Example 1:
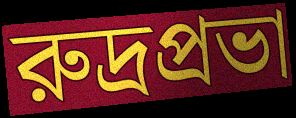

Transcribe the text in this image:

রুদ্রপ্রভা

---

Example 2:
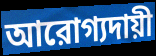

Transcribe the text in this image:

আরোগ্যদায়ী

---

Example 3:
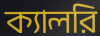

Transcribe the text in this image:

ক্যালরি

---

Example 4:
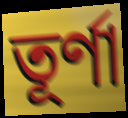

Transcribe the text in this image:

তূর্ণা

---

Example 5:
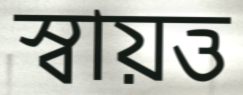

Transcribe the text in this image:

স্বায়ত্ত